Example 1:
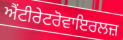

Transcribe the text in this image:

ਐਂਟੀਰੇਟਰੋਵਾਇਰਲਜ਼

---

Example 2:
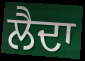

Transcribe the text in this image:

ਲੈਦਾ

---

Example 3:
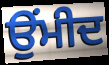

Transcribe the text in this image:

ਉਂਮੀਦ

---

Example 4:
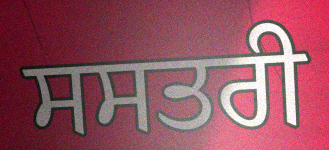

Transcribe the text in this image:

ਸਸਤਰੀ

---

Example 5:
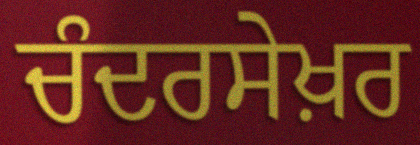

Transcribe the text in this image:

ਚੰਦਰਸੇਖ਼ਰ